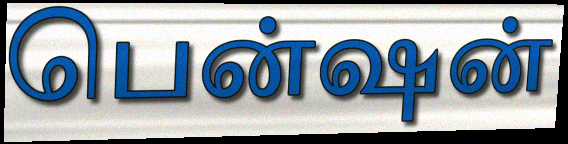
பென்ஷன்